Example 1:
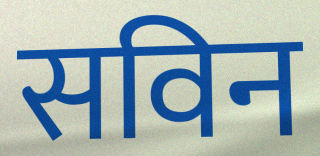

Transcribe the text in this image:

सविन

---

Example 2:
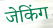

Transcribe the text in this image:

जेकिंग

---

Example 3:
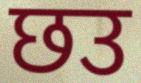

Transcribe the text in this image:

छउ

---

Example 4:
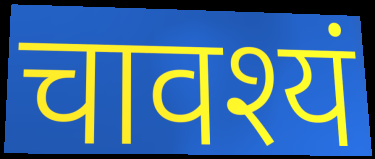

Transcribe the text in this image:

चावश्यं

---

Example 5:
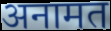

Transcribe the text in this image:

अनामत